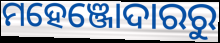
ମହେଞ୍ଜୋଦାରରୁ